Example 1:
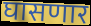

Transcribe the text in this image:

घासणार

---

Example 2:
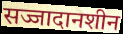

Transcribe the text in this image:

सज्जादानशीन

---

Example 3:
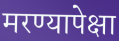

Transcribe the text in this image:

मरण्यापेक्षा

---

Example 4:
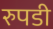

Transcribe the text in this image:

रुपडी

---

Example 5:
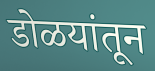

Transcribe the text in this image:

डोळयांतून